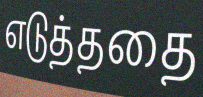
எடுத்ததை